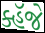
ક્હૅજે